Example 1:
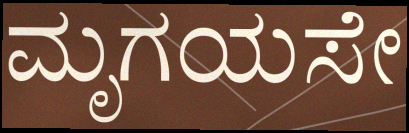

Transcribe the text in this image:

ಮೃಗಯಸೇ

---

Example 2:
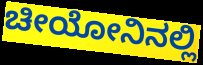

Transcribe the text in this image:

ಚೀಯೋನಿನಲ್ಲಿ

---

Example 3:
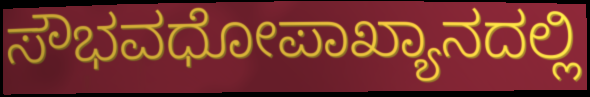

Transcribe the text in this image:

ಸೌಭವಧೋಪಾಖ್ಯಾನದಲ್ಲಿ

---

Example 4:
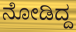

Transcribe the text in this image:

ನೋಡಿದ್ದ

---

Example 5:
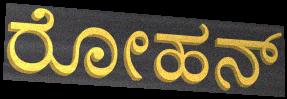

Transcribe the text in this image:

ರೋಹನ್